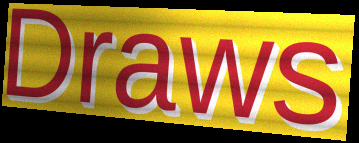
Draws